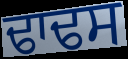
ਢਾਢਸ